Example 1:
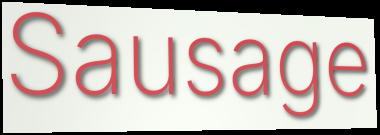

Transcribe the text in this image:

Sausage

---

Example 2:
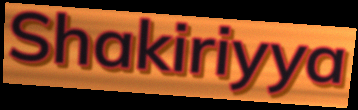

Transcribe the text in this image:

Shakiriyya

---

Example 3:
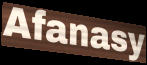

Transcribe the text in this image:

Afanasy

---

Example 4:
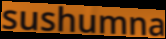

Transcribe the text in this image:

sushumna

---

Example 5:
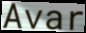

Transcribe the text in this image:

Avar